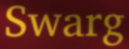
Swarg